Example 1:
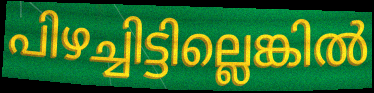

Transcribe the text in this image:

പിഴച്ചിട്ടില്ലെങ്കിൽ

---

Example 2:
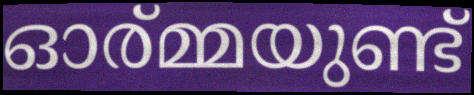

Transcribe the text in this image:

ഓര്മ്മയുണ്ട്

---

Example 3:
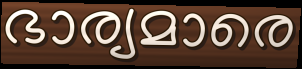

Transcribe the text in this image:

ഭാര്യമാരെ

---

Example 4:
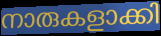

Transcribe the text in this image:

നാരുകളാക്കി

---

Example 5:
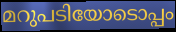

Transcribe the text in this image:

മറുപടിയോടൊപ്പം